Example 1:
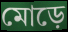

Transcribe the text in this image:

মোড়ে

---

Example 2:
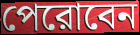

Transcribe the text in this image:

পেরোবেন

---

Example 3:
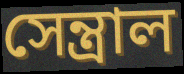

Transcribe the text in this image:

সেন্ত্রাল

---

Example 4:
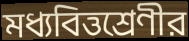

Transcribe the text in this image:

মধ্যবিত্তশ্রেণীর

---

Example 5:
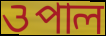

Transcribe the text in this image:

ওপাল